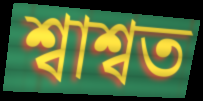
শ্বাশ্বত